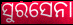
ସୁରସେନା